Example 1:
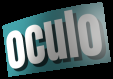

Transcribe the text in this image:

oculo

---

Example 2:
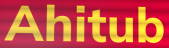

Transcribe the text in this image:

Ahitub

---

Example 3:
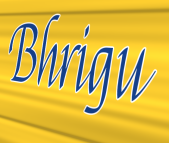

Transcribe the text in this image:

Bhrigu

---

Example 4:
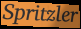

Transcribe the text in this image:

Spritzler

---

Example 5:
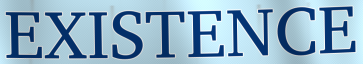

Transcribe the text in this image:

EXISTENCE